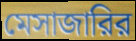
মেসাজারির